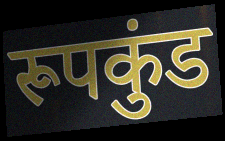
रूपकुंड